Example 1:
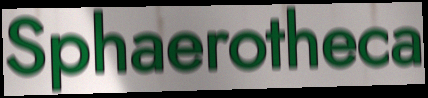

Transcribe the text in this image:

Sphaerotheca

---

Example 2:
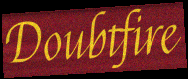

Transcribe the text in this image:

Doubtfire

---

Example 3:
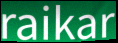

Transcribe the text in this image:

raikar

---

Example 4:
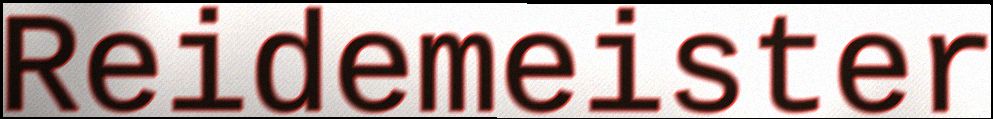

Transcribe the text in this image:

Reidemeister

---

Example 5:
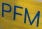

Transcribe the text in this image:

PFM